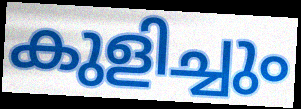
കുളിച്ചും